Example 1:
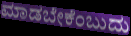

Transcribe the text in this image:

ಮಾಡಬೇಕೆಂಬುದು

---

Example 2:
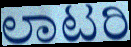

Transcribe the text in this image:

ಲಾಟರಿ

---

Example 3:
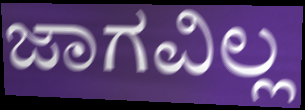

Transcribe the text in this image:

ಜಾಗವಿಲ್ಲ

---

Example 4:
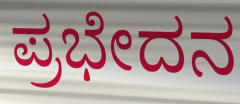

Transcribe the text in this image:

ಪ್ರಭೇದನ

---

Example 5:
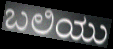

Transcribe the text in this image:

ಬಲಿಯು